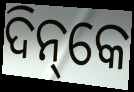
ଦିନ୍‌କେ